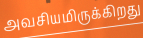
அவசியமிருக்கிறது